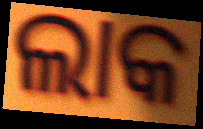
ଲାକ